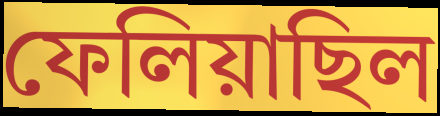
ফেলিয়াছিল